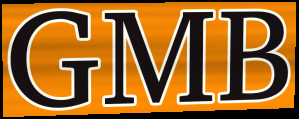
GMB